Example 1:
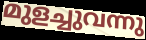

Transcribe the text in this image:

മുളച്ചുവന്നു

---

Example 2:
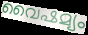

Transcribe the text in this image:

വൈഷമ്യം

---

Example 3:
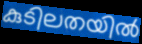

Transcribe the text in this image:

കുടിലതയിൽ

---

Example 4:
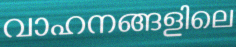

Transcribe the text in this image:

വാഹനങ്ങളിലെ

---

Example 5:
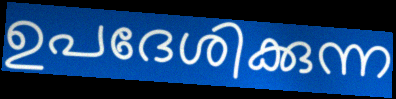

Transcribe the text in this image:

ഉപദേശിക്കുന്ന